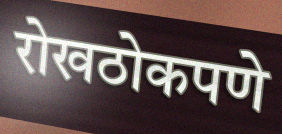
रोखठोकपणे